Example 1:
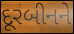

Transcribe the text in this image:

દૂરબીનને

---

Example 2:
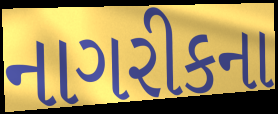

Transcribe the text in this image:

નાગરીકના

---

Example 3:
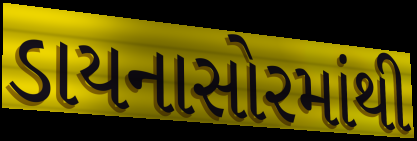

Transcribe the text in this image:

ડાયનાસોરમાંથી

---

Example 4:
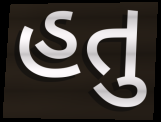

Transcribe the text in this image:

હતુ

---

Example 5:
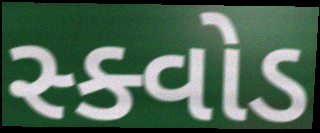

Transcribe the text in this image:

સ્ક્વોડ